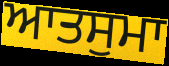
ਆਤਸੁਮਾ